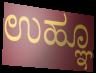
ಉಹ್ಞೂ